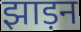
झाड़न